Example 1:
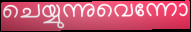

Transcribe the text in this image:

ചെയ്യുന്നുവെന്നോ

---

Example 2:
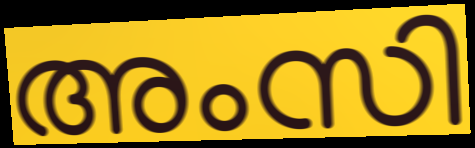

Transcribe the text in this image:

അംസി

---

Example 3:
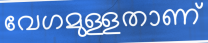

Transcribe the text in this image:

വേഗമുള്ളതാണ്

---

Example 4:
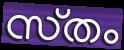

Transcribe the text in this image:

സ്‌തം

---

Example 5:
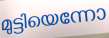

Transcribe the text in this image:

മുട്ടിയെന്നോ